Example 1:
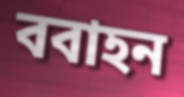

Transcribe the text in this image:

ববাহন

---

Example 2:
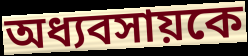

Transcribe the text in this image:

অধ্যবসায়কে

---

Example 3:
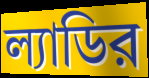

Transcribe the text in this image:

ল্যাডির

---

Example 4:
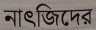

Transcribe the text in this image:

নাৎজিদের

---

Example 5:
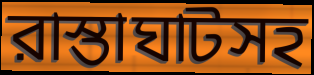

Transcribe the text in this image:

রাস্তাঘাটসহ